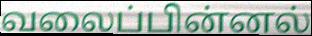
வலைப்பின்னல்